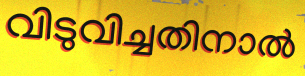
വിടുവിച്ചതിനാൽ